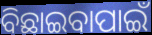
ବିଛାଇବାପାଇଁ